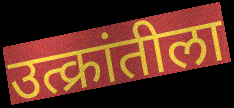
उत्क्रांतीला